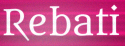
Rebati